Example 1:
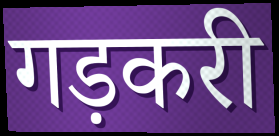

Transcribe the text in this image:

गड़करी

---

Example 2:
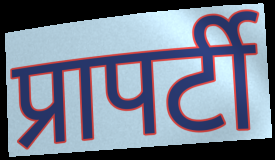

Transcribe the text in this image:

प्रापर्टी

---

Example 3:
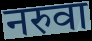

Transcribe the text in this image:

नरुवा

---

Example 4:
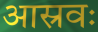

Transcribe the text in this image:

आस्रवः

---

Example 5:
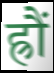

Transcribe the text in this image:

ह्रौं